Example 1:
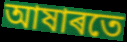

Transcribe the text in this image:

আষাৰতে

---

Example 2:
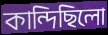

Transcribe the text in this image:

কান্দিছিলো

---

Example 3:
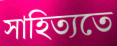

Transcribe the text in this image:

সাহিত্য়তে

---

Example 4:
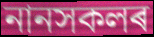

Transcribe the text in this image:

নানসকলৰ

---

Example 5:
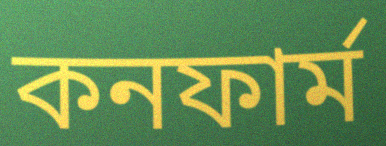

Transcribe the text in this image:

কনফাৰ্ম